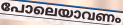
പോലെയാവണം